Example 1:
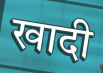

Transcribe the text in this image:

खादी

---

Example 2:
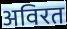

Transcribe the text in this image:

अविरत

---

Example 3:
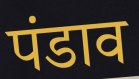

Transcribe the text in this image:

पंडाव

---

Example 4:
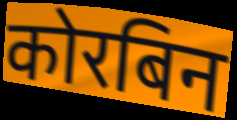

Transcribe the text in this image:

कोरबिन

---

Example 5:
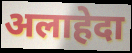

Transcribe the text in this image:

अलाहेदा